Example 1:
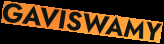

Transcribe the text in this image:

GAVISWAMY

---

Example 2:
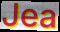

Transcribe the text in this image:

Jea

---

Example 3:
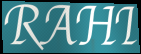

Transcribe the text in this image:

RAHI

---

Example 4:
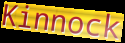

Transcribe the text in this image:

Kinnock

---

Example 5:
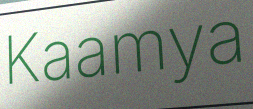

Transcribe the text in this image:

Kaamya